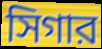
সিগার